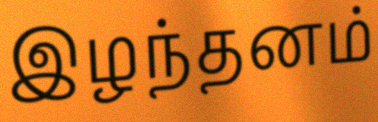
இழந்தனம்